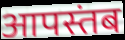
आपस्तंब